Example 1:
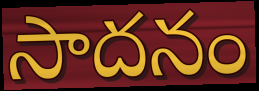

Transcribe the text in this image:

సాదనం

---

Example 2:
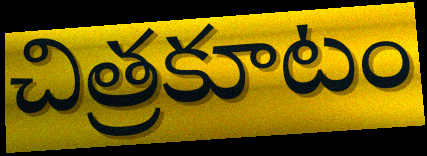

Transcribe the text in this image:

చిత్రకూటం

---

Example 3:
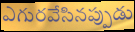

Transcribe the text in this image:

ఎగురవేసినప్పుడు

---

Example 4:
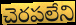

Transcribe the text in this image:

చెరపలేని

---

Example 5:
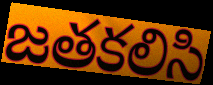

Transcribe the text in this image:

జతకలిసి